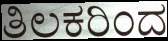
ತಿಲಕರಿಂದ